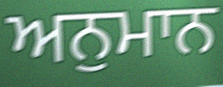
ਅਨੁਮਾਨ